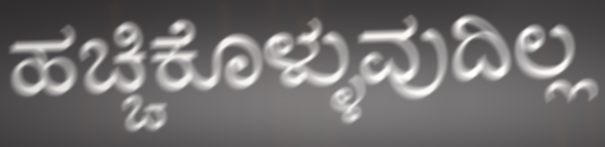
ಹಚ್ಚಿಕೊಳ್ಳುವುದಿಲ್ಲ